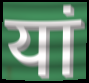
यां